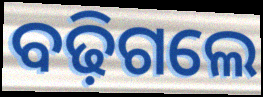
ବଢ଼ିଗଲେ